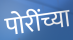
पोरींच्या